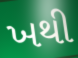
ખથી